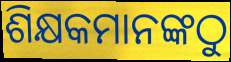
ଶିକ୍ଷକମାନଙ୍କଠୁ